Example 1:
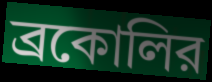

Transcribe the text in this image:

ব্রকোলির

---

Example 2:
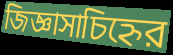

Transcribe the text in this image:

জিজ্ঞাসাচিহ্নের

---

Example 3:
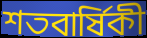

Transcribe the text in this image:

শতবার্ষিকী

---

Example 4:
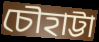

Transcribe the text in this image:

চৌহাট্টা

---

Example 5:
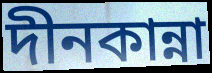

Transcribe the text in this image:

দীনকান্না